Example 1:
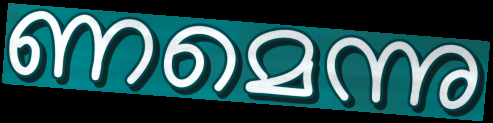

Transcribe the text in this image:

ണമെന്നു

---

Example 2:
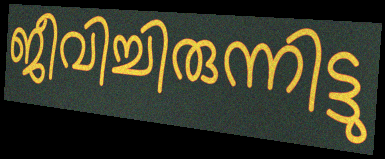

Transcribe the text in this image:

ജീവിച്ചിരുന്നിട്ടു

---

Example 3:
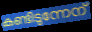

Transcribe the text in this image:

കണ്ടിടുന്നേന്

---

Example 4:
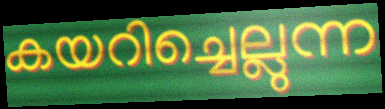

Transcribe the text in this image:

കയറിച്ചെല്ലുന്ന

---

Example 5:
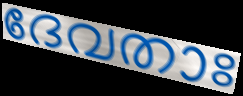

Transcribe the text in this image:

ദേവതാഃ